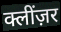
क्लींज़र